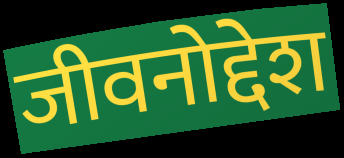
जीवनोद्देश